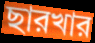
ছারখার